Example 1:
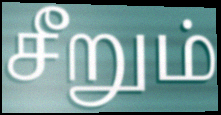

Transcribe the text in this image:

சீறும்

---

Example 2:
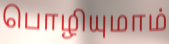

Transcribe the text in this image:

பொழியுமாம்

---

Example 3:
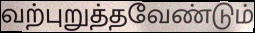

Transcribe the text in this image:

வற்புறுத்தவேண்டும்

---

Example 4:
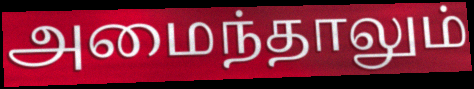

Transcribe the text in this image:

அமைந்தாலும்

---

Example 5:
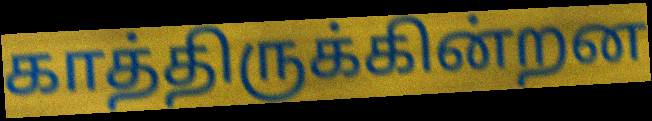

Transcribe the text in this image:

காத்திருக்கின்றன